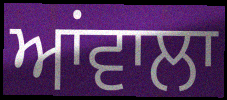
ਆਂਵਾਲਾ